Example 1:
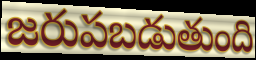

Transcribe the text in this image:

జరుపబడుతుంది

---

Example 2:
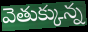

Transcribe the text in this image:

వెతుక్కున్న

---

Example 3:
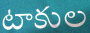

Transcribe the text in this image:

టాకుల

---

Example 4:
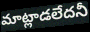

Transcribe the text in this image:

మాట్లాడలేదనీ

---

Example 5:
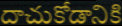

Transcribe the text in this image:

దాచుకోడానికి